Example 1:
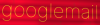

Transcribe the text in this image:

googlemail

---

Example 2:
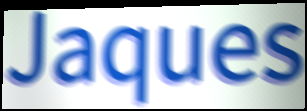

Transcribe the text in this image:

Jaques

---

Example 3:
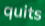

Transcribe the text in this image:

quits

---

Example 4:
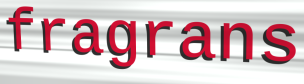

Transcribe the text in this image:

fragrans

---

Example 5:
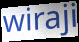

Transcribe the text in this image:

wiraji